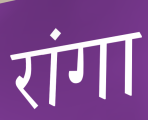
रांगा